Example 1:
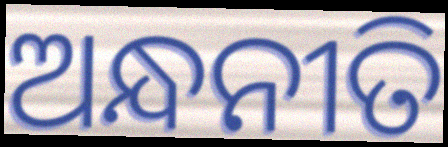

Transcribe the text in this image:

ଅନ୍ଧନୀତି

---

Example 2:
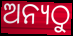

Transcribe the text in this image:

ଅନ୍ୟଠୁ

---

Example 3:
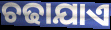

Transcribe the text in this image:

ଚଢାଯାଏ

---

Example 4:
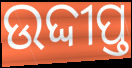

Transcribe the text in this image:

ଉଦ୍ଦୀପ୍ତ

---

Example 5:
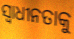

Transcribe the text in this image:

ସ୍ୱାଧୀନତାକୁ